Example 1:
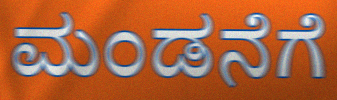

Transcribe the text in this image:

ಮಂಡನೆಗೆ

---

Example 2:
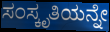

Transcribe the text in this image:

ಸಂಸ್ಕೃತಿಯನ್ನೇ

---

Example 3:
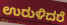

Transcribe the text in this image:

ಉರುಳಿದರೆ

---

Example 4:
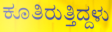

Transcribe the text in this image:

ಕೂತಿರುತ್ತಿದ್ದಳು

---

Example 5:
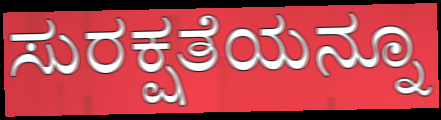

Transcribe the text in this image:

ಸುರಕ್ಷತೆಯನ್ನೂ